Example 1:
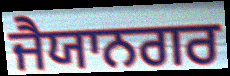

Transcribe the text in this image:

ਜੈਯਾਨਗਰ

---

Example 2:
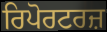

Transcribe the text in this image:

ਰਿਪੋਰਟਰਜ਼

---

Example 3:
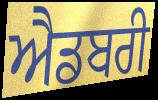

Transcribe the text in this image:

ਐਡਬਰੀ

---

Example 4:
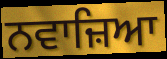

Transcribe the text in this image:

ਨਵਾਜ਼ਿਆ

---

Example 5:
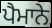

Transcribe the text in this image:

ਪੈਮਾਨੇ